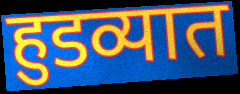
हुडव्यात